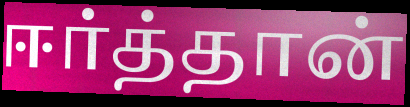
ஈர்த்தான்